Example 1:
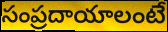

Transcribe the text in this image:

సంప్రదాయాలంటే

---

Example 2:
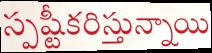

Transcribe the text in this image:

స్పష్టీకరిస్తున్నాయి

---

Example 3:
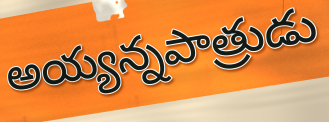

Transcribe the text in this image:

అయ్యన్నపాత్రుడు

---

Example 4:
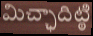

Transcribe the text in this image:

మిచ్ఛాదిట్ఠి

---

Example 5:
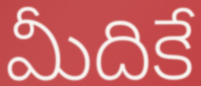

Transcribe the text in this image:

మీదికే